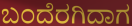
ಬಂದೆರಗಿದಾಗ